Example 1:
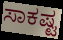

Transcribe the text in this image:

ಸಾಕಷ್ಟ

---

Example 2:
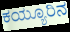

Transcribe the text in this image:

ಕಯ್ಯೂರಿನ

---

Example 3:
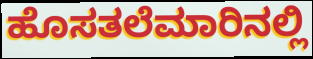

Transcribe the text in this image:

ಹೊಸತಲೆಮಾರಿನಲ್ಲಿ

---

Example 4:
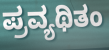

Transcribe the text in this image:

ಪ್ರವ್ಯಥಿತಂ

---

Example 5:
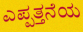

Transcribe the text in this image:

ಎಪ್ಪತ್ತನೆಯ